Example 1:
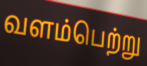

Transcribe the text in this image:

வளம்பெற்று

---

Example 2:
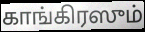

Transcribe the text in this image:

காங்கிரஸும்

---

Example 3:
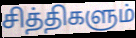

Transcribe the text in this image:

சித்திகளும்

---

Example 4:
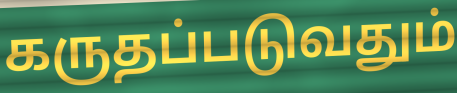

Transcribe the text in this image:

கருதப்படுவதும்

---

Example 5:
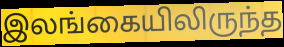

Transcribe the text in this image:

இலங்கையிலிருந்த